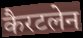
कैरटलेन